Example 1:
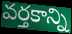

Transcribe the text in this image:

వర్తకాన్ని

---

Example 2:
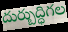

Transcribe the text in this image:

దుర్బుద్ధిగల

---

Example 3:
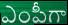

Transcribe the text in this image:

ఎంపీగా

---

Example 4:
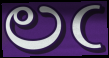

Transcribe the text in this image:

లఁ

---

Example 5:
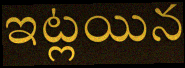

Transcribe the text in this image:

ఇట్లయిన